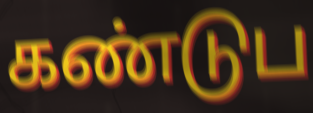
கண்டுப